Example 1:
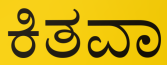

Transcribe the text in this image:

ಕಿತವಾ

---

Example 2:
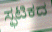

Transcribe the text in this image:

ಸ್ಫಟಿಕದ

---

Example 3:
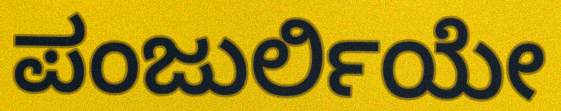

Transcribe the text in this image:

ಪಂಜುರ್ಲಿಯೇ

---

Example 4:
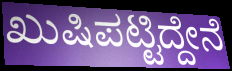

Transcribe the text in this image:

ಖುಷಿಪಟ್ಟಿದ್ದೇನೆ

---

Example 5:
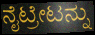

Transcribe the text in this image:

ನೈಟ್ರೇಟನ್ನು